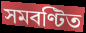
সমবণ্টিত